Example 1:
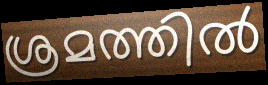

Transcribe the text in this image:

ശ്രമത്തിൽ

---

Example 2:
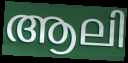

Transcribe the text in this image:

ആലി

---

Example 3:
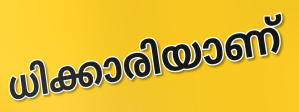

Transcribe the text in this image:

ധിക്കാരിയാണ്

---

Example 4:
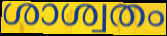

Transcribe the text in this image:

ശാശ്വതം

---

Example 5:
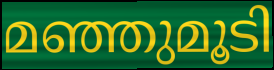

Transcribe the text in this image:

മഞ്ഞുമൂടി